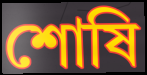
শোষি